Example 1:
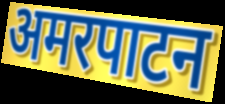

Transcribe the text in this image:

अमरपाटन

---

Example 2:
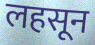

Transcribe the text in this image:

लहसून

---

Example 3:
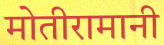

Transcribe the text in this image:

मोतीरामानी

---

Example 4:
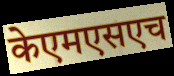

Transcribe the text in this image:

केएमएसएच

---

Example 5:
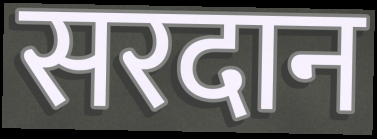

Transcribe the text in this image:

सरदान